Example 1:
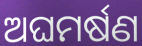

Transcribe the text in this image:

ଅଘମର୍ଷଣ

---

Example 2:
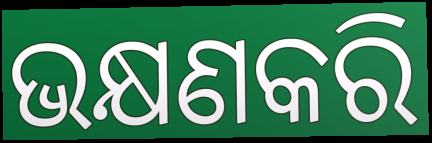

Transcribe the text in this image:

ଭକ୍ଷଣକରି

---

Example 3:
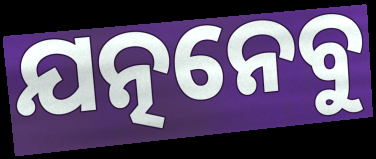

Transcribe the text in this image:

ଯତ୍ନନେବୁ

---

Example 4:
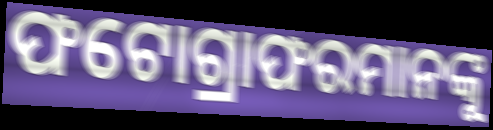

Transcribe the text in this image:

ଫଟୋଗ୍ରାଫରମାନଙ୍କୁ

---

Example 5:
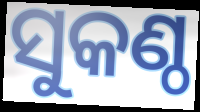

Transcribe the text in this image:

ସୁକଣ୍ଠ